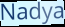
Nadya